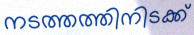
നടത്തത്തിനിടക്ക്